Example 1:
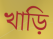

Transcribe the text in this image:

খাড়ি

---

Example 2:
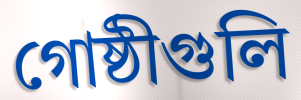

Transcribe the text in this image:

গোষ্ঠীগুলি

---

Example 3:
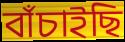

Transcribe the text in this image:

বাঁচাইছি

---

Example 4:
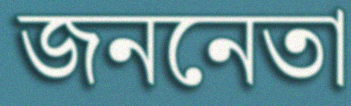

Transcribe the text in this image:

জননেতা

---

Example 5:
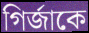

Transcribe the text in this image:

গির্জাকে